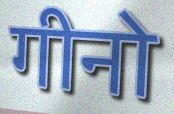
गीनो